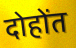
दोहोंत